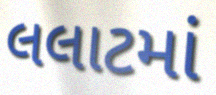
લલાટમાં